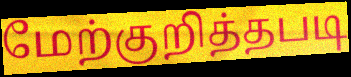
மேற்குறித்தபடி